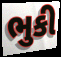
ભુકી